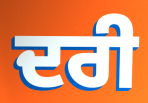
ਦਰੀ